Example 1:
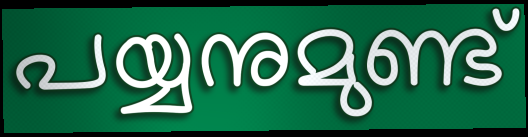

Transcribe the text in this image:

പയ്യനുമുണ്ട്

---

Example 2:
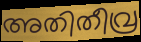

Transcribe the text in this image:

അതിതീവ്ര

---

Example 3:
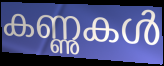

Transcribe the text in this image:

കണ്ണുകൾ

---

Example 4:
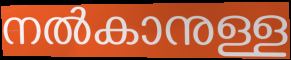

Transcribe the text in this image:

നൽകാനുള്ള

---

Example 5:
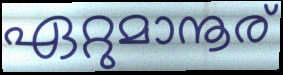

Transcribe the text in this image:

ഏറ്റുമാനൂര്